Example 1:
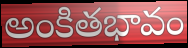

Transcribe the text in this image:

అంకితభావం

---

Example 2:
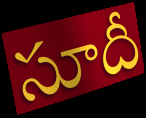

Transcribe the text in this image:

సూదీ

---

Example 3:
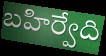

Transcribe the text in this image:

బహిర్వేది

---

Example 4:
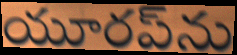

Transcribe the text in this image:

యూరప్‌ను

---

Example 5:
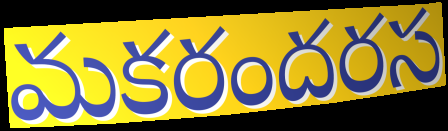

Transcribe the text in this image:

మకరందరస